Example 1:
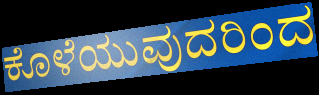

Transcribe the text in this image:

ಕೊಳೆಯುವುದರಿಂದ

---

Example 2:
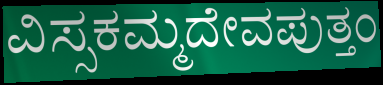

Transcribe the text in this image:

ವಿಸ್ಸಕಮ್ಮದೇವಪುತ್ತಂ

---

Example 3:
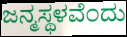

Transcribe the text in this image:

ಜನ್ಮಸ್ಥಳವೆಂದು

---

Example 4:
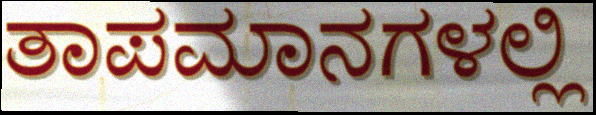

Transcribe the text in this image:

ತಾಪಮಾನಗಳಲ್ಲಿ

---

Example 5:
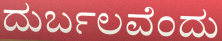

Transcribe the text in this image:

ದುರ್ಬಲವೆಂದು